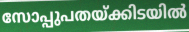
സോപ്പുപതയ്ക്കിടയിൽ